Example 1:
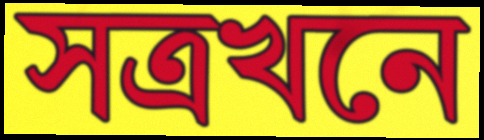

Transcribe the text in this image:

সত্ৰখনে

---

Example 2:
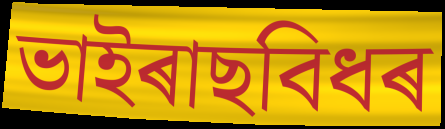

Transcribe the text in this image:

ভাইৰাছবিধৰ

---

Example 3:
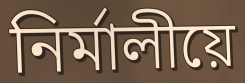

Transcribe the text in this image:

নিৰ্মালীয়ে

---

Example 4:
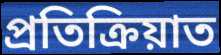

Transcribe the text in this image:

প্ৰতিক্ৰিয়াত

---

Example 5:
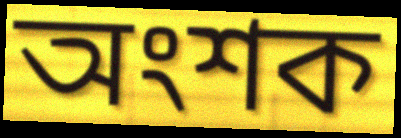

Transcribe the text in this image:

অংশক